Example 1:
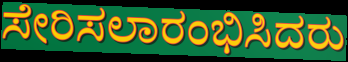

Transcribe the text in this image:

ಸೇರಿಸಲಾರಂಭಿಸಿದರು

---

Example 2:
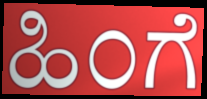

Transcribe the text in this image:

ಹಿಂಗೆ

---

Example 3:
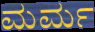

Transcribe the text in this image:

ಮರ್ಮ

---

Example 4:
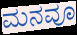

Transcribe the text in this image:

ಮನವೂ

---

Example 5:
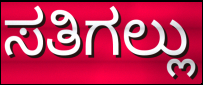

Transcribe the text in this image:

ಸತಿಗಲ್ಲು